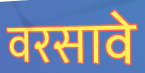
वरसावे